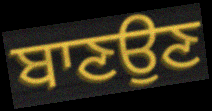
ਬਾਣਉਣ